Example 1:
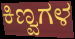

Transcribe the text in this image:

ಕಿಣ್ವಗಳ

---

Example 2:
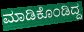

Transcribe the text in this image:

ಮಾಡಿಕೊಂಡಿದ್ದ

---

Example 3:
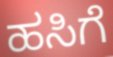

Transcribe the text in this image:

ಹಸಿಗೆ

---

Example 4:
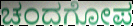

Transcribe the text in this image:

ಚಂದಗೋಪ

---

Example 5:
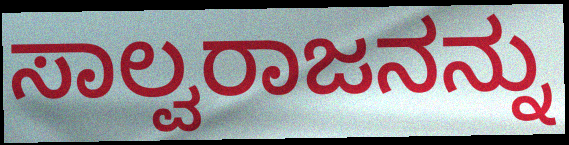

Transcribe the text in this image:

ಸಾಲ್ವರಾಜನನ್ನು